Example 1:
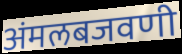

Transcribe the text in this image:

अंमलबजवणी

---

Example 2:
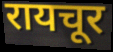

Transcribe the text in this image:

रायचूर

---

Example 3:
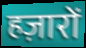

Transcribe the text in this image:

हज़ारों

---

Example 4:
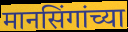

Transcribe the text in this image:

मानसिंगांच्या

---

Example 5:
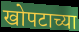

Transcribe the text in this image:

खोपटाच्या